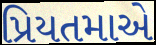
પ્રિયતમાએ